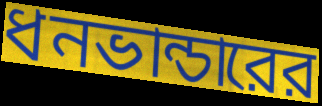
ধনভান্ডারের